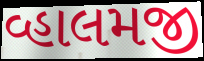
વ્હાલમજી